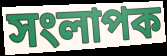
সংলাপক